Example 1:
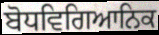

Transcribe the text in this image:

ਬੋਧਵਿਗਿਆਨਿਕ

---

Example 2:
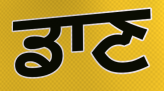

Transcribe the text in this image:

ਡਾਣ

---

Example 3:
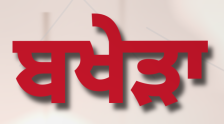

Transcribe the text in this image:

ਬਖੇੜਾ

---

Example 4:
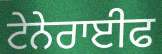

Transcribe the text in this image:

ਟੇਨੇਰਾਈਫ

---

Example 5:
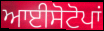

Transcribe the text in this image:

ਆਈਸੋਟੋਪਾਂ